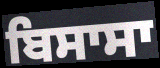
ਬਿਸਾਸਾ